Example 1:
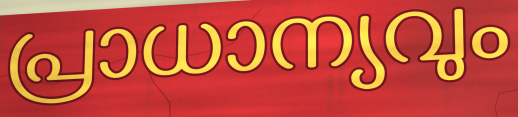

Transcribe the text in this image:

പ്രാധാന്യവും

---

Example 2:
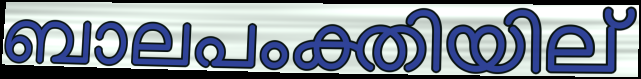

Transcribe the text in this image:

ബാലപംക്തിയില്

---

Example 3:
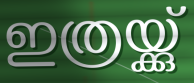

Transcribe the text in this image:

ഇത്രയ്ക്കു്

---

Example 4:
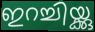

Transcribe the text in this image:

ഇറച്ചിയ്ക്കു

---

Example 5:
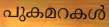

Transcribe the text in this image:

പുകമറകൾ